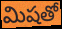
మిషతో